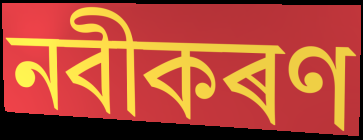
নবীকৰণ